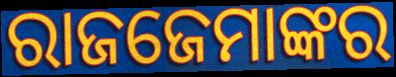
ରାଜଜେମାଙ୍କର